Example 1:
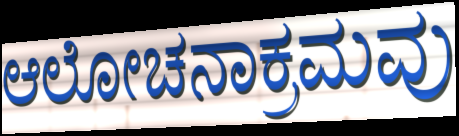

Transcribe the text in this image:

ಆಲೋಚನಾಕ್ರಮವು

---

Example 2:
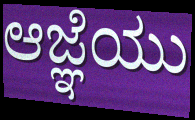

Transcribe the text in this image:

ಆಜ್ಞೆಯು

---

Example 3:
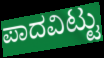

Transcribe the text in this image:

ಪಾದವಿಟ್ಟು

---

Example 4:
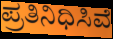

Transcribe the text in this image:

ಪ್ರತಿನಿಧಿಸಿವೆ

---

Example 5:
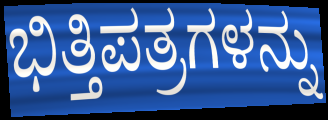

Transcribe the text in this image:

ಭಿತ್ತಿಪತ್ರಗಳನ್ನು